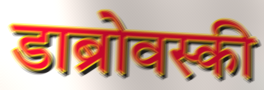
डाब्रोवस्की